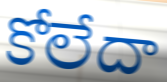
కోలేదా